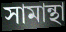
সামান্থা